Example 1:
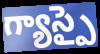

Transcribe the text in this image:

గ్యాస్పై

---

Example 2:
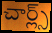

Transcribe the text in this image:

చార్ల్స్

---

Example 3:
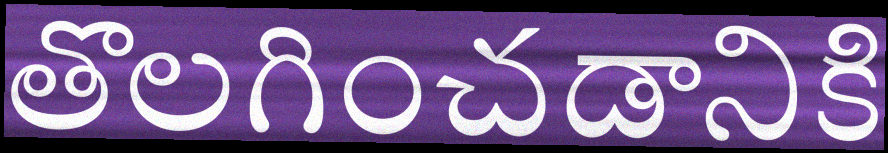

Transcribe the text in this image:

తొలగించడానికి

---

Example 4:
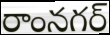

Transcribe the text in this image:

రాంనగర్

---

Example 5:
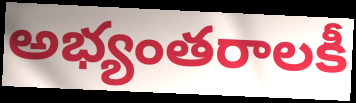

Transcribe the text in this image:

అభ్యంతరాలకీ